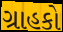
ગ્રાહકો